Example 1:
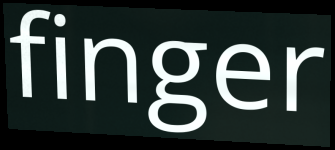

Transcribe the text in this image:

finger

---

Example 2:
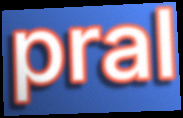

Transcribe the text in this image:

pral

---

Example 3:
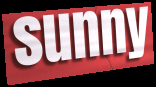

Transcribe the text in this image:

sunny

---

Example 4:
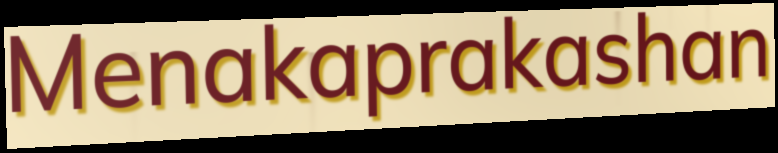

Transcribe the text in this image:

Menakaprakashan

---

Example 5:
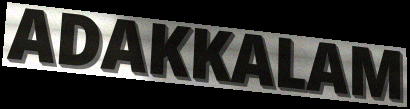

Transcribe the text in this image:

ADAKKALAM